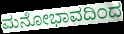
ಮನೋಭಾವದಿಂದ